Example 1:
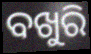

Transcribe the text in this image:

ବଖୁରି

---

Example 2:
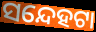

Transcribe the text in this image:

ସନ୍ଦେହଟା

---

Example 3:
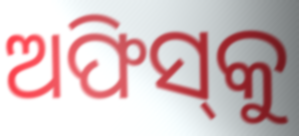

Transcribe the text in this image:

ଅଫିସ୍‌କୁ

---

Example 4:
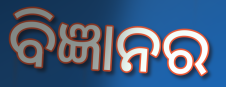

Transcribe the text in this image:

ବିଜ୍ଞାନର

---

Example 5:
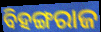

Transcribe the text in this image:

ବିହଙ୍ଗରାଜ